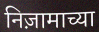
निज़ामाच्या